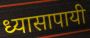
ध्यासापायी